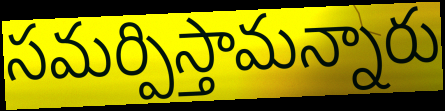
సమర్పిస్తామన్నారు